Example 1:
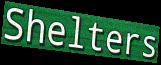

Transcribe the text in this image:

Shelters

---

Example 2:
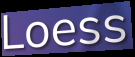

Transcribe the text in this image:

Loess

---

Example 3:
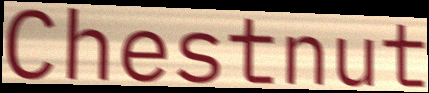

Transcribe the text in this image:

Chestnut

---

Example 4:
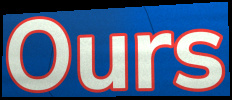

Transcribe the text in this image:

Ours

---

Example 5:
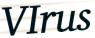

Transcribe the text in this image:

VIrus